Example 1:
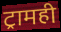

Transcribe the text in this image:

ट्रामही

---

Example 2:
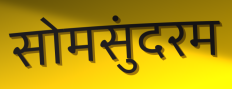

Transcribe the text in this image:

सोमसुंदरम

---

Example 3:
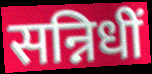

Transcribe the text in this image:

सन्निधीं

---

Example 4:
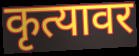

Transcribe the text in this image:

कृत्यावर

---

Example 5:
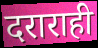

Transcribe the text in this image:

दराराही